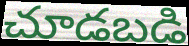
చూడబడి